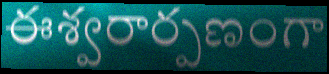
ఈశ్వరార్పణంగా